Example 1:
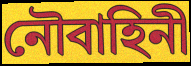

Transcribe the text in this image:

নৌবাহিনী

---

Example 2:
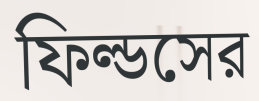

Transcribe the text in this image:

ফিল্ডসের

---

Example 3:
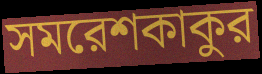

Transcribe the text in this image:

সমরেশকাকুর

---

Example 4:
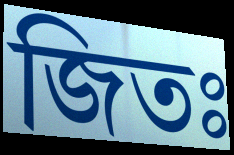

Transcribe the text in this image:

জিতঃ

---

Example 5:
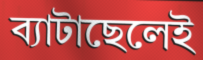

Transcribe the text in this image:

ব্যাটাছেলেই